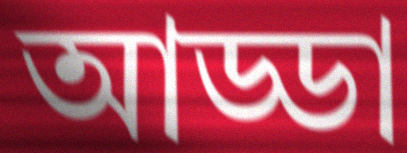
আড্ডা